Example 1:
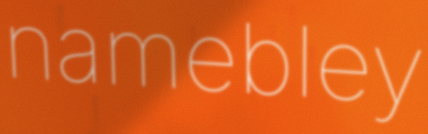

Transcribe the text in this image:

namebley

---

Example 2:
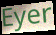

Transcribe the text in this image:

Eyer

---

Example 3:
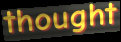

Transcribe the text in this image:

thought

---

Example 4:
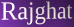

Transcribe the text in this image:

Rajghat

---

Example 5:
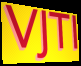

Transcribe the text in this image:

VJTI